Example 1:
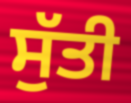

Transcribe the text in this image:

ਸੁੱਤੀ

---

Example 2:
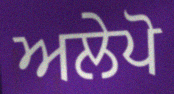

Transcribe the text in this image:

ਅਲੇਪੋ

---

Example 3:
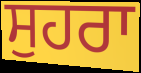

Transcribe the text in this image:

ਸੁਹਰਾ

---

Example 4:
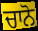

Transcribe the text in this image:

ਚਾਨੋ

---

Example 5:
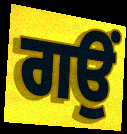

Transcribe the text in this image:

ਗਉਂ